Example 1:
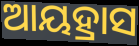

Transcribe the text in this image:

ଆୟହ୍ରାସ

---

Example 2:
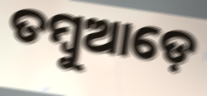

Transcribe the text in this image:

ତମ୍ବୁଆଡ଼େ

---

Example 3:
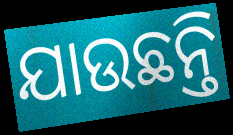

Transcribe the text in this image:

ଯାଉଛନ୍ତି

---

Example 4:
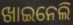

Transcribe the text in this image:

ଖାଇନେଲି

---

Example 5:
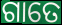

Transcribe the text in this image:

ଗାତେ